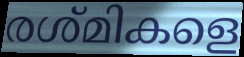
രശ്മികളെ